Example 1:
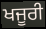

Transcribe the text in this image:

ਖਜੂਰੀ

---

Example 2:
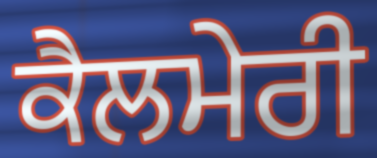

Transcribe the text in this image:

ਕੈਲਮੇਰੀ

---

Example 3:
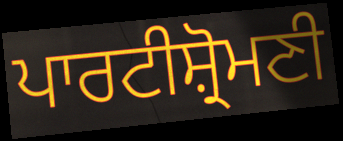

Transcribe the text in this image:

ਪਾਰਟੀਸ਼੍ਰੋਮਣੀ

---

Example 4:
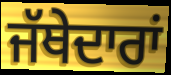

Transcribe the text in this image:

ਜੱਥੇਦਾਰਾਂ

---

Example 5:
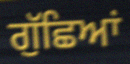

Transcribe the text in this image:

ਗੁੱਛਿਆਂ